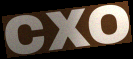
CXO